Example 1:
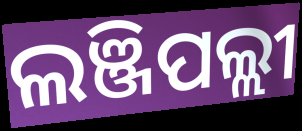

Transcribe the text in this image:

ଲଞ୍ଜିପଲ୍ଲୀ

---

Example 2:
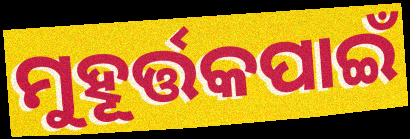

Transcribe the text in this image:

ମୁହୂର୍ତ୍ତକପାଇଁ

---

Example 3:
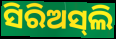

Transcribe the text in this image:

ସିରିଅସ୍‌ଲି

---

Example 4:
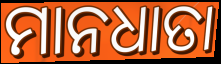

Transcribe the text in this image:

ମାନଧାତା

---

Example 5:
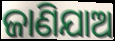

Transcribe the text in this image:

ଜାଣିଯାଅ